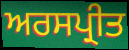
ਅਰਸਪ੍ਰੀਤ